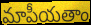
మాపీయతాం